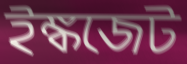
ইঙ্কজেট